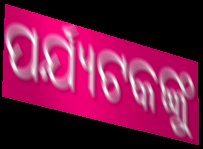
ପର୍ଯ୍ୟଟକଙ୍କୁ